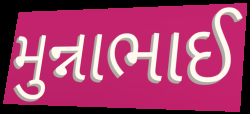
મુન્નાભાઈ